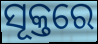
ସୂକ୍ତରେ